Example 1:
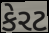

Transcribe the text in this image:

કેરટ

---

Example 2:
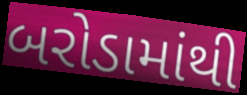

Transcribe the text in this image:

બરોડામાંથી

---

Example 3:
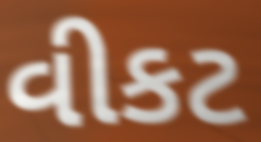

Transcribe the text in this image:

વીકટ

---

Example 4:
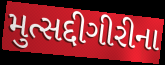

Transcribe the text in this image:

મુત્સદ્દીગીરીના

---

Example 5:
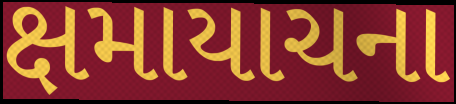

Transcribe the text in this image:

ક્ષમાયાચના